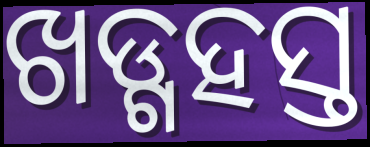
ଖଡ୍ଗହସ୍ତ